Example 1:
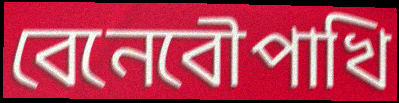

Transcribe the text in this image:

বেনেবৌপাখি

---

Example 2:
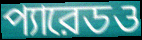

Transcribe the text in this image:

প্যারেডও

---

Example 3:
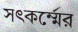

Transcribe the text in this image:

সৎকর্ম্মের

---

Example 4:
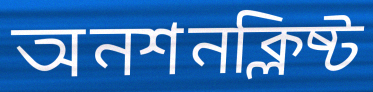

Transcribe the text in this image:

অনশনক্লিষ্ট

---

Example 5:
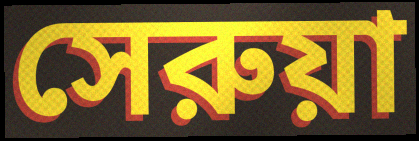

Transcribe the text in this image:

সেরুয়া